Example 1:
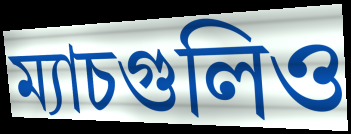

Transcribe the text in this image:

ম্যাচগুলিও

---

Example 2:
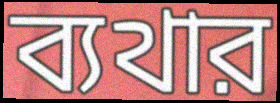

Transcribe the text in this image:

ব্যথার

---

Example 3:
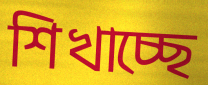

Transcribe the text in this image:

শিখাচ্ছে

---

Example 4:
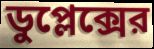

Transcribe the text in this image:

ডুপ্লেক্সের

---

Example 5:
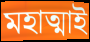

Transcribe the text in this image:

মহাত্মাই